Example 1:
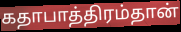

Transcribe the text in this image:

கதாபாத்திரம்தான்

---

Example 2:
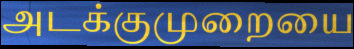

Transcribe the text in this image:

அடக்குமுறையை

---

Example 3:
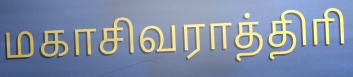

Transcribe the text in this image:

மகாசிவராத்திரி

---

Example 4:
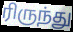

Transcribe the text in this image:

ரிருந்து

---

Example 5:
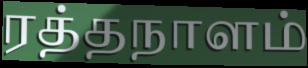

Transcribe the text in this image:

ரத்தநாளம்